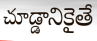
చూడ్డానికైతే